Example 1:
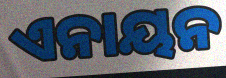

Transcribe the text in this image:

ଏନାୟନ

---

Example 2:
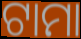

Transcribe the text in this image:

ଟାମା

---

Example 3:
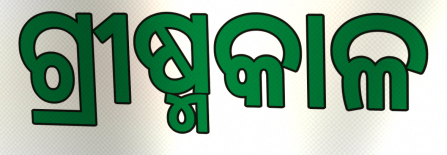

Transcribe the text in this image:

ଗ୍ରୀଷ୍ମକାଳ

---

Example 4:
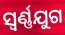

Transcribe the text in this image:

ସ୍ଵର୍ଣ୍ଣଯୁଗ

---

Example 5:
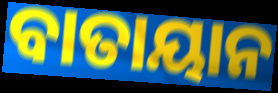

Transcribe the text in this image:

ବାତାୟାନ